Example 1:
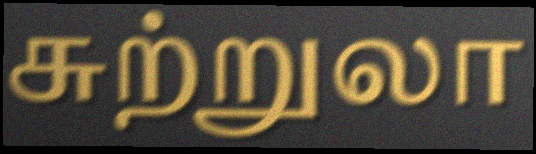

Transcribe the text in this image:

சுற்றுலா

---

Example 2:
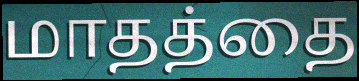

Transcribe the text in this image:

மாதத்தை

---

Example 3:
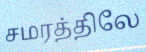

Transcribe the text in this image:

சமரத்திலே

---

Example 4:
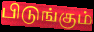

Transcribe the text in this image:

பிடுங்கும்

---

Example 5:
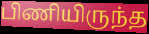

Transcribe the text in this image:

பிணியிருந்த